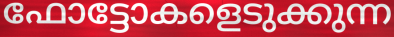
ഫോട്ടോകളെടുക്കുന്ന